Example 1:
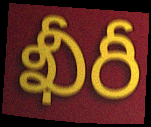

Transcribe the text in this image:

ఖీరీ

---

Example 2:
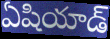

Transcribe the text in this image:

ఏషియాడ్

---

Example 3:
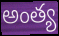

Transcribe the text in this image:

అంత్య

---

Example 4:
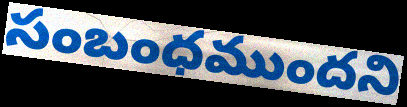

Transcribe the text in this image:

సంబంధముందని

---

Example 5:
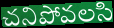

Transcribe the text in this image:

చనిపోవలసి